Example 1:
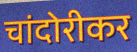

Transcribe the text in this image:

चांदोरीकर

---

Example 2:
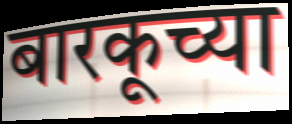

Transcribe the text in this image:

बारकूच्या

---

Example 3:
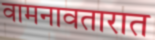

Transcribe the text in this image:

वामनावतारात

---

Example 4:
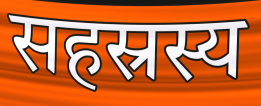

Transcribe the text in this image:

सहस्रस्य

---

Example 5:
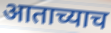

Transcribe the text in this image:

आताच्याच